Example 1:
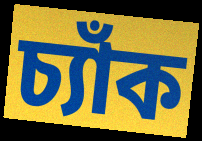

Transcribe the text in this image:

চ্যাঁক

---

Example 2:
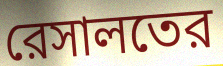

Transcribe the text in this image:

রেসালতের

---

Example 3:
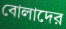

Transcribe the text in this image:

বোলাদের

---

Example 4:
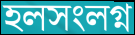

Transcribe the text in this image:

হলসংলগ্ন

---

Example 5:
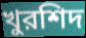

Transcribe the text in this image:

খুরশিদ